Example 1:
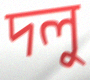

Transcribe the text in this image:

দলু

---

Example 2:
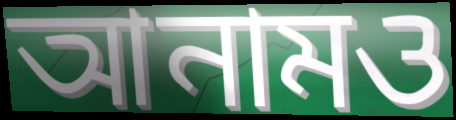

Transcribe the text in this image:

আনামও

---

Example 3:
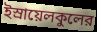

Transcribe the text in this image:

ইস্রায়েলকুলের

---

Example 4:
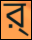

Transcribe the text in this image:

র্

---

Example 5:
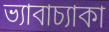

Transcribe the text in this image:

ভ্যাবাচ্যাকা